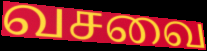
வசவை